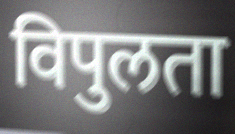
विपुलता